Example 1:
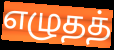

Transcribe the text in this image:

எழுதத்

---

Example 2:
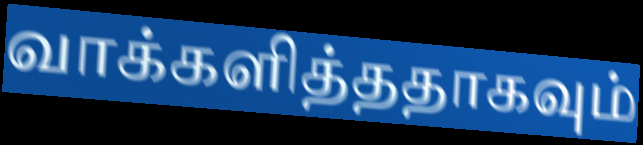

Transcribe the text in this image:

வாக்களித்ததாகவும்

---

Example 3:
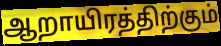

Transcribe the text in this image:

ஆறாயிரத்திற்கும்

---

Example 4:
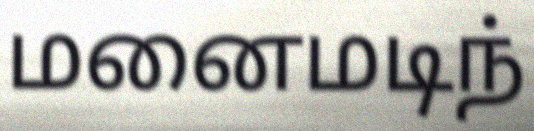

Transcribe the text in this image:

மனைமடிந்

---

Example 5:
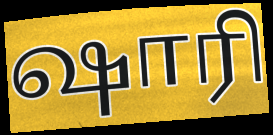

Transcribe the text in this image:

ஷாரி